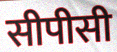
सीपीसी